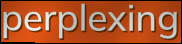
perplexing